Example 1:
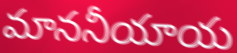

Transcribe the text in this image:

మాననీయాయ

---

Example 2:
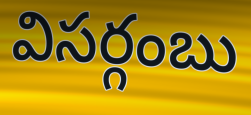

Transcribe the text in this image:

విసర్గంబు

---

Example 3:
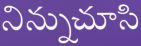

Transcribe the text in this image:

నిన్నుచూసి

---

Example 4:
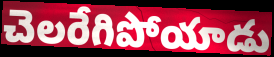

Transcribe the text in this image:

చెలరేగిపోయాడు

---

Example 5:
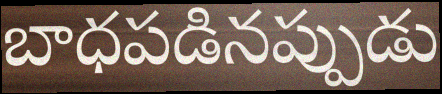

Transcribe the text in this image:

బాధపడినప్పుడు